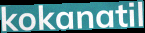
kokanatil